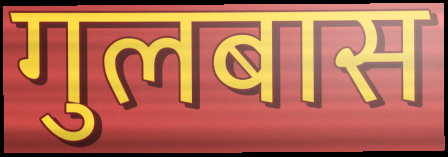
गुलबास